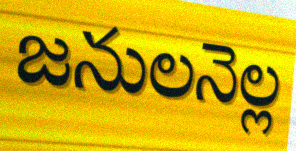
జనులనెల్ల